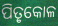
ପିତୃକୋଳ